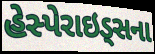
હેસ્પેરાઇડ્સના